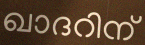
ഖാദറിന്